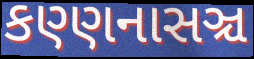
કણ્ણનાસઞ્ચ